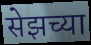
सेझच्या